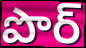
పొర్